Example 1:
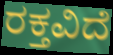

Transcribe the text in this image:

ರಕ್ತವಿದೆ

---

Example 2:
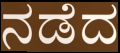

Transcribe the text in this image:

ನಡೆದ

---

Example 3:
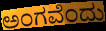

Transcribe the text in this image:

ಅಂಗವೆಂದು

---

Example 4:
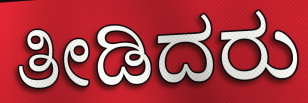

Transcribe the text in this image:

ತೀಡಿದರು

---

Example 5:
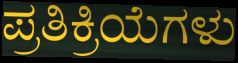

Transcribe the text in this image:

ಪ್ರತಿಕ್ರಿಯೆಗಳು